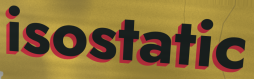
isostatic